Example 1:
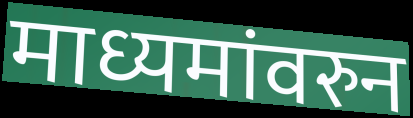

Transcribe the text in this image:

माध्यमांवरुन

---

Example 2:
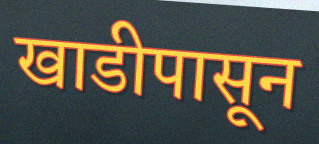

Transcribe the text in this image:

खाडीपासून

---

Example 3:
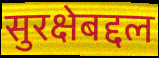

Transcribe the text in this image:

सुरक्षेबद्दल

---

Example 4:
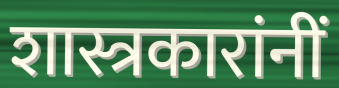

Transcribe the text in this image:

शास्त्रकारांनीं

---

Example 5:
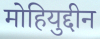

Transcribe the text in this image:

मोहियुद्दीन